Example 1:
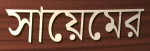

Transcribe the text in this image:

সায়েমের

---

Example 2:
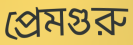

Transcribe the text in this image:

প্রেমগুরু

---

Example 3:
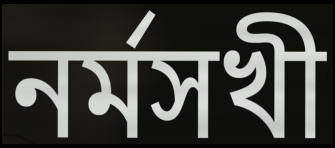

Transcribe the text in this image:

নর্মসখী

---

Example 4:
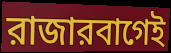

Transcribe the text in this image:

রাজারবাগেই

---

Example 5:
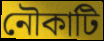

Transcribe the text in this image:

নৌকাটি